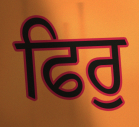
ਫਿਰੁ